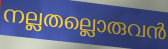
നല്ലതല്ലൊരുവൻ